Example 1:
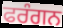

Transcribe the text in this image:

ਫਰੰਗਨ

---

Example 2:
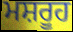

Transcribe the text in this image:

ਮਸ਼ਰੂਹ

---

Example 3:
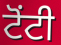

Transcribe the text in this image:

ਟੋਂਟੀ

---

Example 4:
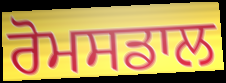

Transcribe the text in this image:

ਰੋਮਸਡਾਲ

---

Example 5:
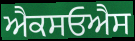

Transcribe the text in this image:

ਐਕਸਓਐਸ